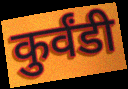
कुर्वंडी